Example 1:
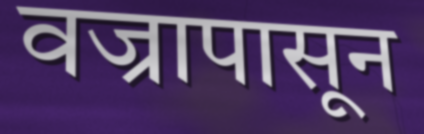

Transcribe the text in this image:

वज्रापासून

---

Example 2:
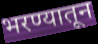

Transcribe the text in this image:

भरण्यातून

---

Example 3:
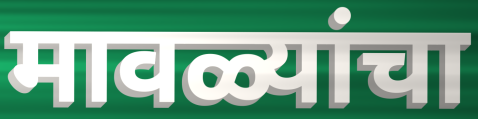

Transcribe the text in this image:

मावळ्यांचा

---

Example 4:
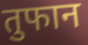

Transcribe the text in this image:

तुफान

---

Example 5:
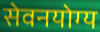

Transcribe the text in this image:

सेवनयोग्य